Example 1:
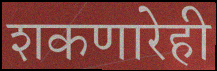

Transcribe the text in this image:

शकणारेही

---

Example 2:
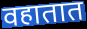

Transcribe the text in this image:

वहातात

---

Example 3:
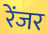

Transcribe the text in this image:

रेंजर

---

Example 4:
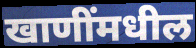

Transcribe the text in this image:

खाणींमधील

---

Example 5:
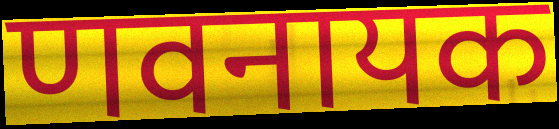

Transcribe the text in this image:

णवनायक